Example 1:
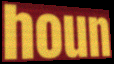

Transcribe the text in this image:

houn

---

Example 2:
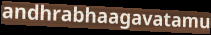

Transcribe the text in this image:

andhrabhaagavatamu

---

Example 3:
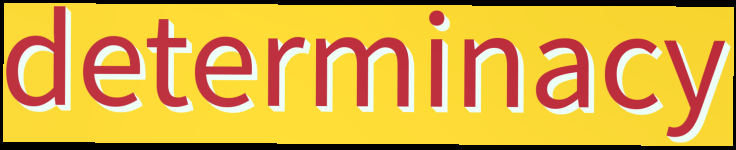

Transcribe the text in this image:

determinacy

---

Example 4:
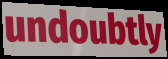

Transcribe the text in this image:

undoubtly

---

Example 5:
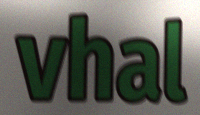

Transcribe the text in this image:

vhal